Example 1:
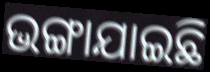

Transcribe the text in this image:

ଭଙ୍ଗାଯାଇଛି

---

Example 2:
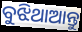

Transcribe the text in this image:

ବୁଝିଥାଆନ୍ତୁ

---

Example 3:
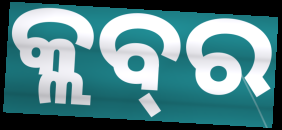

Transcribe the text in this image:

କ୍ଲବ୍‌ର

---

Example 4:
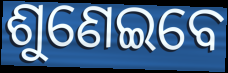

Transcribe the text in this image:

ଶୁଣେଇବେ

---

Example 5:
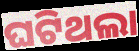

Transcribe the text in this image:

ଘଟିଥଲା